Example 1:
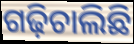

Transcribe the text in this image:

ଗଢ଼ିଚାଲିଛି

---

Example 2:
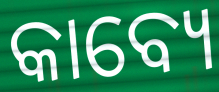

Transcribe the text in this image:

କାବ୍ୟେ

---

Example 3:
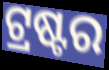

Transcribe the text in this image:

ଟ୍ରଷ୍ଟର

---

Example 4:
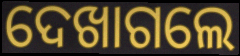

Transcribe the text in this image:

ଦେଖାଗଲେ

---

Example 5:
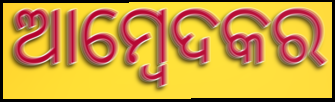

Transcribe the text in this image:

ଆମ୍ବେଦକର